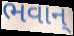
ભવાન્